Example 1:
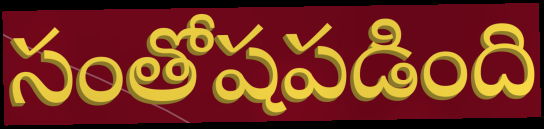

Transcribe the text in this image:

సంతోషపడింది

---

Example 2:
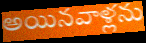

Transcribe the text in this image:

అయినవాళ్లను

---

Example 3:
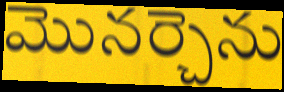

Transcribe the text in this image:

మొనర్చెను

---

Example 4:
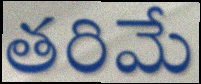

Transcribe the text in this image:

తరిమే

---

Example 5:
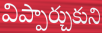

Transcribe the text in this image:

విప్పార్చుకుని